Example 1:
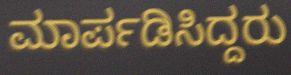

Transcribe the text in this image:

ಮಾರ್ಪಡಿಸಿದ್ದರು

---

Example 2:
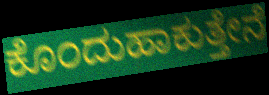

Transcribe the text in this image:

ಕೊಂದುಹಾಕುತ್ತೇನೆ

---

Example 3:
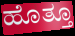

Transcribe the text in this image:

ಹೊತ್ತೂ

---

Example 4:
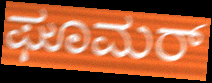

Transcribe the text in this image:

ಘೂಮರ್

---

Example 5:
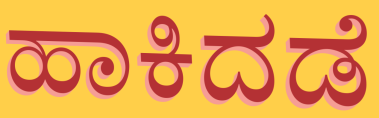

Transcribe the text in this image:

ಹಾಕಿದಡೆ